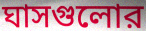
ঘাসগুলোর